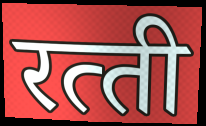
रत्‍ती